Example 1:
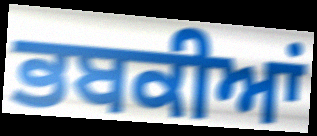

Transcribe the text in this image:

ਭਬਕੀਆਂ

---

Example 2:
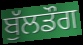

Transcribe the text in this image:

ਬੁੱਲਡੌਗ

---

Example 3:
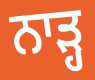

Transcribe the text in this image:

ਨਾੜ੍ਹ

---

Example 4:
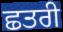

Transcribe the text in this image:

ਛਤਰੀ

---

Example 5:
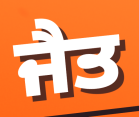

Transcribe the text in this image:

ਜੈਤ